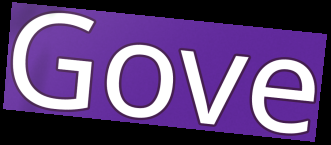
Gove